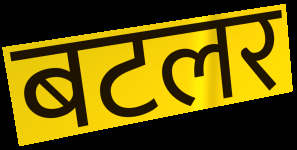
बटलर